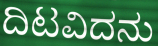
ದಿಟವಿದನು